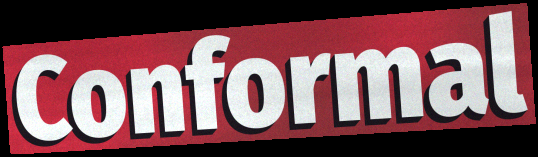
Conformal